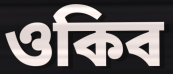
ওকিব